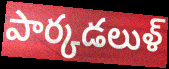
పార్కడలుళ్